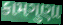
કામગુણા